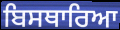
ਬਿਸਥਾਰਿਆ